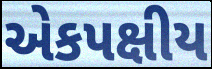
એકપક્ષીય